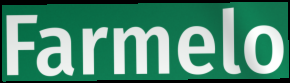
Farmelo